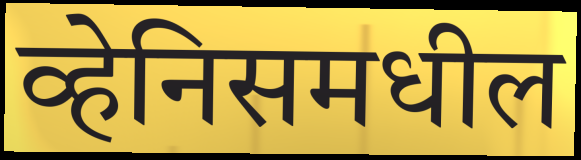
व्हेनिसमधील